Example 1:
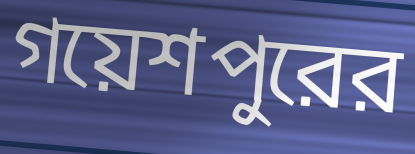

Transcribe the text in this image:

গয়েশপুরের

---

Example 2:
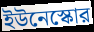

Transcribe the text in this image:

ইউনেস্কোর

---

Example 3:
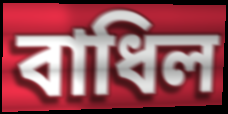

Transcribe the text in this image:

বাধিল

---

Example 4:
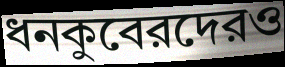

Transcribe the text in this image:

ধনকুবেরদেরও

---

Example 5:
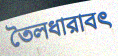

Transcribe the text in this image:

তৈলধারাবৎ